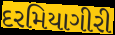
દરમિયાગીરી